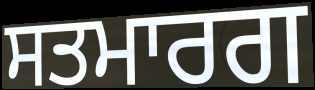
ਸਤਮਾਰਗ